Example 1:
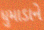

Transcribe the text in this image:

ધુમાડાને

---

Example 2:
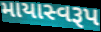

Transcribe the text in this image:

માયાસ્વરૂપ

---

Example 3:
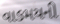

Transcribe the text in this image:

વાઙમયની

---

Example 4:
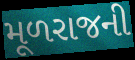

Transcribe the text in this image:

મૂળરાજની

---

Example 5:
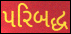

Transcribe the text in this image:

પરિબદ્ધ